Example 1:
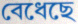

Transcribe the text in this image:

বেধেছে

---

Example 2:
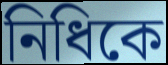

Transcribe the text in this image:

নিধিকে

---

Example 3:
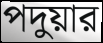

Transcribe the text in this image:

পদুয়ার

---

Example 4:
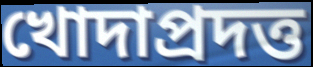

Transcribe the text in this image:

খোদাপ্রদত্ত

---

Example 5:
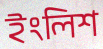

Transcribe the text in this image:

ইংলিশ